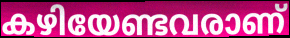
കഴിയേണ്ടവരാണ്